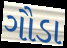
ગૌડા